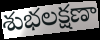
శుభలక్షణా